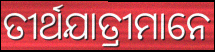
ତୀର୍ଥଯାତ୍ରୀମାନେ